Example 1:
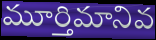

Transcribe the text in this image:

మూర్తిమానివ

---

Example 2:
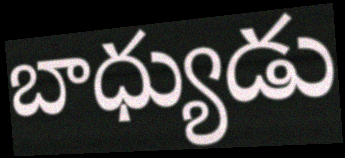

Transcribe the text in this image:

బాధ్యుడు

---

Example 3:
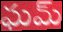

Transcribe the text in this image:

ఘమ్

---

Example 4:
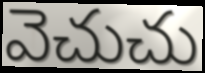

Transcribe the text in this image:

వెచుచు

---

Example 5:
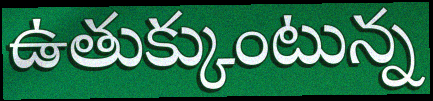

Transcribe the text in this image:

ఉతుక్కుంటున్న